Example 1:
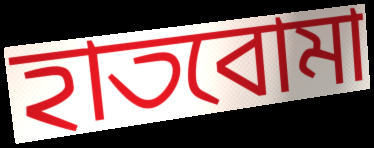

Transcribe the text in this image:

হাতবোমা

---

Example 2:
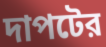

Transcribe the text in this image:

দাপটের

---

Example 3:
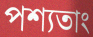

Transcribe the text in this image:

পশ্যতাং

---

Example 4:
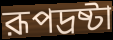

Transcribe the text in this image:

রূপদ্রষ্টা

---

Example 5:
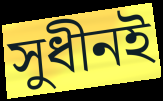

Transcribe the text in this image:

সুধীনই